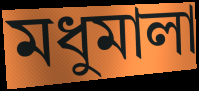
মধুমালা